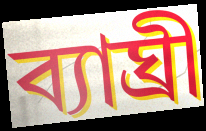
ব্যাঘ্ৰী